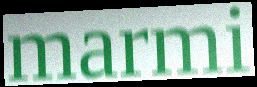
marmi